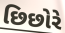
છિછોરે